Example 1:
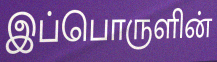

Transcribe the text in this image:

இப்பொருளின்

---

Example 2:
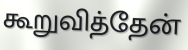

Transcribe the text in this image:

கூறுவித்தேன்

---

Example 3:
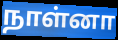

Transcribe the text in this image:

நாள்னா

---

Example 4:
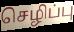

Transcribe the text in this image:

செழிப்பு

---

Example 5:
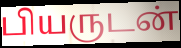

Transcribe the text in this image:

பியருடன்